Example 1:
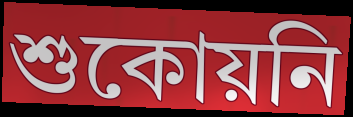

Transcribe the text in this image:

শুকোয়নি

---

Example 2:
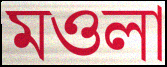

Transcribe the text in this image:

মওলা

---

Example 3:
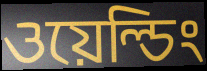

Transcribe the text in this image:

ওয়েল্ডিং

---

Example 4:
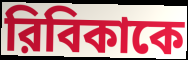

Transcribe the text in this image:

রিবিকাকে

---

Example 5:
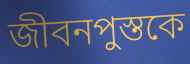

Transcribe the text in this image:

জীবনপুস্তকে